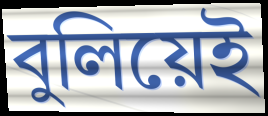
বুলিয়েই